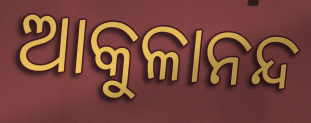
ଆକୁଳାନନ୍ଦ